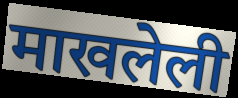
माखलेली